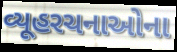
વ્યૂહરચનાઓના